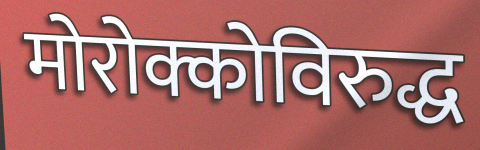
मोरोक्कोविरुद्ध